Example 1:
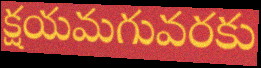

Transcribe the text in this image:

క్షయమగువరకు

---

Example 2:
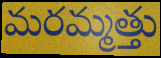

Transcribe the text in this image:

మరమ్మత్తు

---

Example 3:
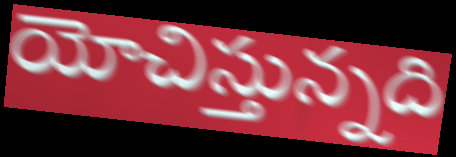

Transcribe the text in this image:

యోచిస్తున్నది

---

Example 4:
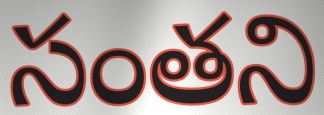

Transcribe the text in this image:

సంతని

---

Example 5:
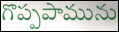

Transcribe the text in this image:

గొప్పపామును